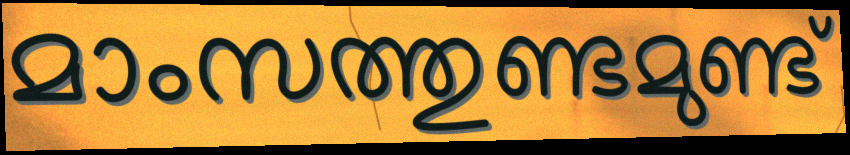
മാംസത്തുണ്ടമുണ്ട്